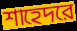
শাহেদরে